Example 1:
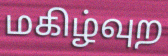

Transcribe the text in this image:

மகிழ்வுற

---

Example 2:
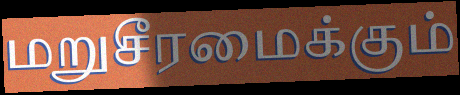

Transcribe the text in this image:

மறுசீரமைக்கும்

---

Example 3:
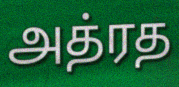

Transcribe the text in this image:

அத்ரத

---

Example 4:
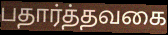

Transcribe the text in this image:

பதார்த்தவகை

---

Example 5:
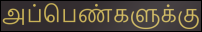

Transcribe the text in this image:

அப்பெண்களுக்கு